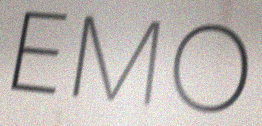
EMO